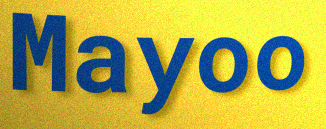
Mayoo